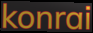
konrai